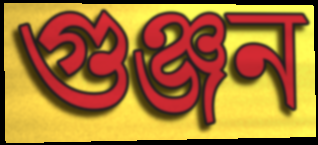
গুঞ্জন